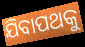
ଯିବାପଥକୁ